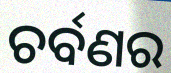
ଚର୍ବଣର